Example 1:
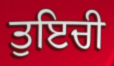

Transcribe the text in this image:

ਤੁਇਚੀ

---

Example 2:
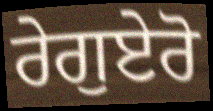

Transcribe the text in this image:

ਰੇਗੁਏਰੋ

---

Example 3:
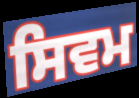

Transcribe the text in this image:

ਸਿਵਮ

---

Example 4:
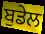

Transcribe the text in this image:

ਬੁਡੇਲ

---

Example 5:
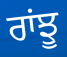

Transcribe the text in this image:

ਰਾਂਝੂ